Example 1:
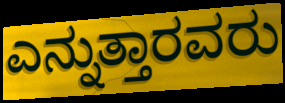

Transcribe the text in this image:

ಎನ್ನುತ್ತಾರವರು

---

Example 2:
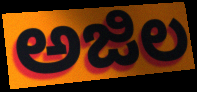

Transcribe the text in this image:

ಅಜಿಲ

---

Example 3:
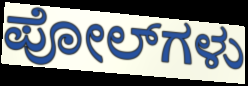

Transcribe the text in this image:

ಪೋಲ್‌ಗಳು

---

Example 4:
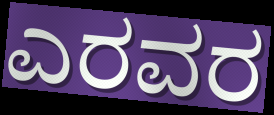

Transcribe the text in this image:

ಎರವರ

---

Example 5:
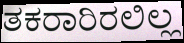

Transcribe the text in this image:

ತಕರಾರಿರಲಿಲ್ಲ